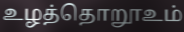
உழத்தொறூஉம்